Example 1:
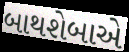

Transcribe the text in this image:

બાથશેબાએ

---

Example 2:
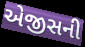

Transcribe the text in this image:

એજીસની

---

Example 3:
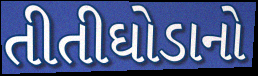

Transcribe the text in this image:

તીતીઘોડાનો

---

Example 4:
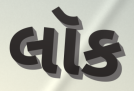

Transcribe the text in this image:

લૉક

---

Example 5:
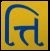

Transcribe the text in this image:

ત્તિ